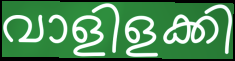
വാളിളക്കി